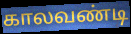
காலவண்டி